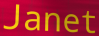
Janet